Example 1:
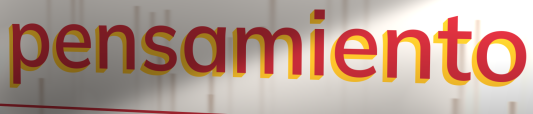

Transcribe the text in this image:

pensamiento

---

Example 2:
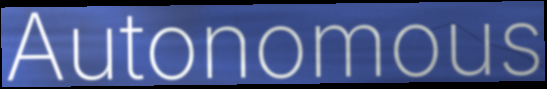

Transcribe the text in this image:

Autonomous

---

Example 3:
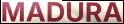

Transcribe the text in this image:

MADURA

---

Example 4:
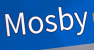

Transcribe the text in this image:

Mosby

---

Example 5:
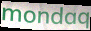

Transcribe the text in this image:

mondaq